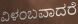
ವಿಳಂಬವಾದರೆ